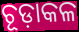
ଚୂଡ଼ାକଳ